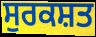
ਸੁਰਕਸ਼ਤ